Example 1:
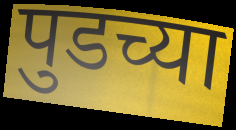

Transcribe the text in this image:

पुडच्या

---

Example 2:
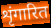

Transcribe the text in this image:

शृंगारित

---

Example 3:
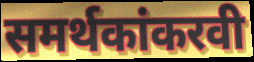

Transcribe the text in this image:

समर्थकांकरवी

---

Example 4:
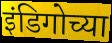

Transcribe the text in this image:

इंडिगोच्या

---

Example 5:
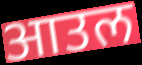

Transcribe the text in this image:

आउल